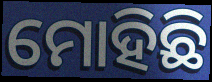
ମୋହିଛି